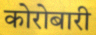
कोरोबारी